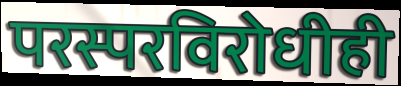
परस्परविरोधीही